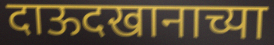
दाऊदखानाच्या